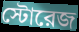
স্টোরেজ